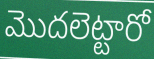
మొదలెట్టారో